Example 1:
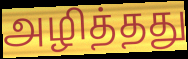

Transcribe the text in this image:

அழித்தது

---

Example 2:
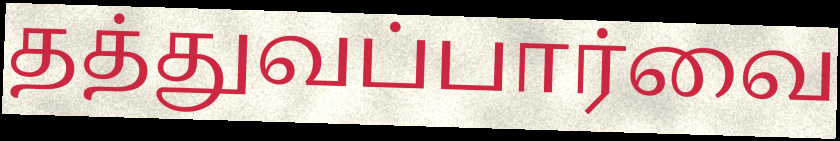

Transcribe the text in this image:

தத்துவப்பார்வை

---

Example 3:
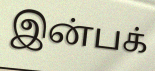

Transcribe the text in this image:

இன்பக்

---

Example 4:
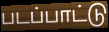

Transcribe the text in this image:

படப்பாட்டு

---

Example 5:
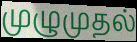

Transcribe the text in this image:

முழுமுதல்